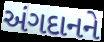
અંગદાનને